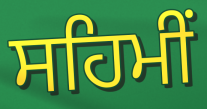
ਸਹਿਮੀਂ